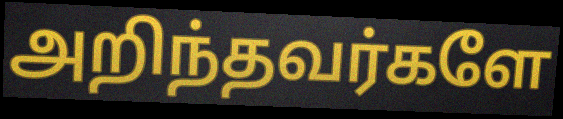
அறிந்தவர்களே